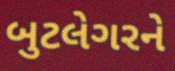
બુટલેગરને